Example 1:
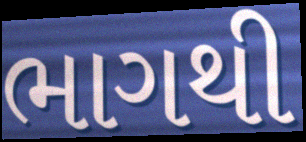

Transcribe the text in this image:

ભાગથી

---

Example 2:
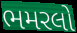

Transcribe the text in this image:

ભમરલો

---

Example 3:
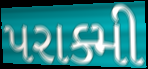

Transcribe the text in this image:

પરાક્મી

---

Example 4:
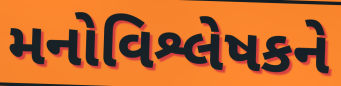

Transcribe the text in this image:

મનોવિશ્લેષકને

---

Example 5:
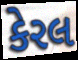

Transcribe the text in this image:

કેરલ